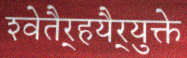
श्वेतैर्हयैर्युक्ते